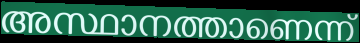
അസ്ഥാനത്താണെന്ന്